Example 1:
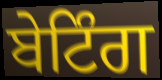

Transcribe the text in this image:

ਬੇਟਿੰਗ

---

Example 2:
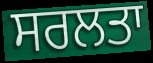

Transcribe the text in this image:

ਸਰਲਤਾ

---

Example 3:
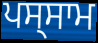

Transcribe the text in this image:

ਪਸ੍ਸਾਮ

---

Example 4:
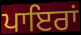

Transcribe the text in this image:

ਪਾਇਰਾਂ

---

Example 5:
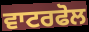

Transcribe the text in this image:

ਵਾਟਰਫੋਲ